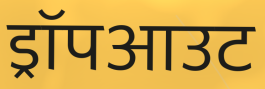
ड्रॉपआउट